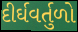
દીર્ઘવર્તુળો